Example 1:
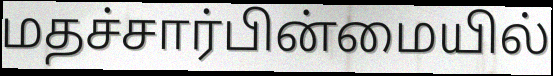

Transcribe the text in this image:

மதச்சார்பின்மையில்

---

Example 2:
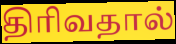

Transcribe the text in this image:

திரிவதால்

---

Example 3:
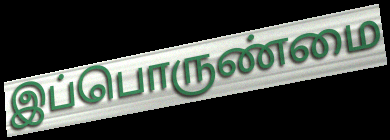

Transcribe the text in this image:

இப்பொருண்மை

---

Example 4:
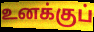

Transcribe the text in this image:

உனக்குப்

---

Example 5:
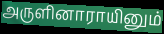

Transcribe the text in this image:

அருளினாராயினும்